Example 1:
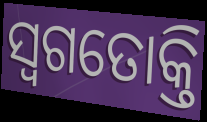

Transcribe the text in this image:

ସ୍ୱଗତୋକ୍ତି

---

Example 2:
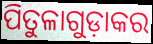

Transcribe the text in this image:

ପିତୁଳାଗୁଡ଼ାକର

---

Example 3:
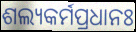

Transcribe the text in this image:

ଶଲ୍ୟକର୍ମପ୍ରଧାନଃ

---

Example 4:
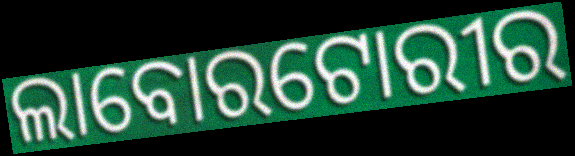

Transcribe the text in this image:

ଲାବୋରଟୋରୀର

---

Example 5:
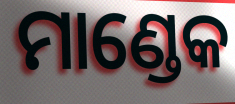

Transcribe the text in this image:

ମାଣ୍ଡେକ